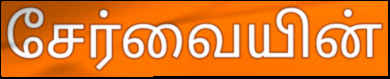
சேர்வையின்